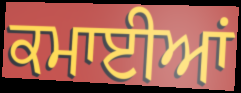
ਕਮਾਈਆਂ